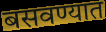
बसवण्यात